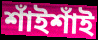
শাঁইশাঁই